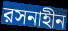
রসনাহীন